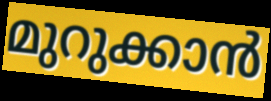
മുറുക്കാൻ